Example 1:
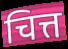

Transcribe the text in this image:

चित्त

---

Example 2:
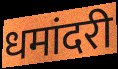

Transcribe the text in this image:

धमांदरी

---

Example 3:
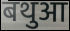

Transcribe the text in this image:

बथुआ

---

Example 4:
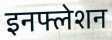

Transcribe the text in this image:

इनफ्लेशन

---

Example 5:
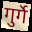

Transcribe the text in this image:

गुर्गे